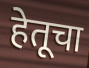
हेतूचा